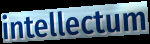
intellectum